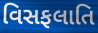
વિસફલાતિ